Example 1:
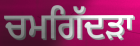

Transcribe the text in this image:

ਚਮਗਿੱਦੜਾ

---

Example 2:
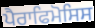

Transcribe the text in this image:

ਪੈਰਾਫਿਮੋਸਿਸ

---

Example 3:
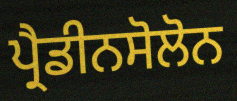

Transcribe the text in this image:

ਪ੍ਰੈਡੀਨਸੋਲੋਨ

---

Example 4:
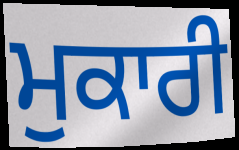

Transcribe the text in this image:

ਮੁਕਾਰੀ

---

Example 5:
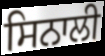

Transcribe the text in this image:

ਸਿਨਾਲੀ